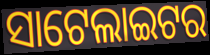
ସାଟେଲାଇଟର